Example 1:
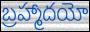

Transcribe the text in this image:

బ్రహ్మాదయో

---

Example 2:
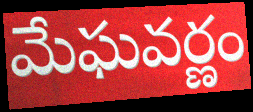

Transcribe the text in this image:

మేఘవర్ణం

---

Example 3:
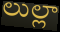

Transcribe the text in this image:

లుల్లా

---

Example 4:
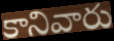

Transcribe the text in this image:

కానివారు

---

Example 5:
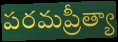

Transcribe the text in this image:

పరమప్రీత్యా